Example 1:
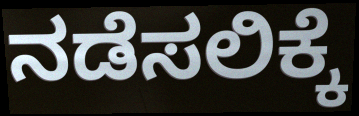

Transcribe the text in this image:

ನಡೆಸಲಿಕ್ಕೆ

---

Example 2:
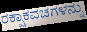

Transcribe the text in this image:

ರಕ್ಷಾಕವಚಗಳನ್ನು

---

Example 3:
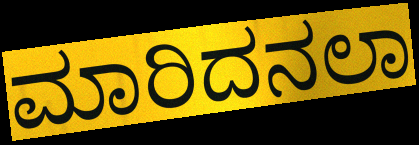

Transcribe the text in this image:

ಮಾರಿದನಲಾ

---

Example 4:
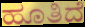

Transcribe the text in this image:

ಹೂತಿದೆ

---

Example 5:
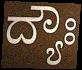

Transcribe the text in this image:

ದ್ಯೌಃ